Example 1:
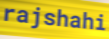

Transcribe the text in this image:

rajshahi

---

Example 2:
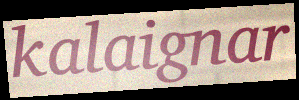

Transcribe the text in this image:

kalaignar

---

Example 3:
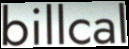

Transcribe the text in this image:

billcal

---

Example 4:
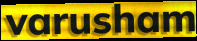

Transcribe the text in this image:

varusham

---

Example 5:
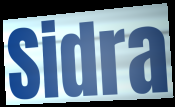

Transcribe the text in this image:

Sidra